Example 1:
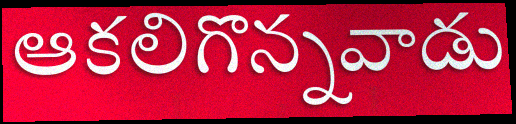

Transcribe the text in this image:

ఆకలిగొన్నవాడు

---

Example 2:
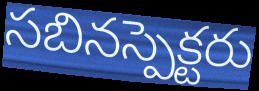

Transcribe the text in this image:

సబినస్పెక్టరు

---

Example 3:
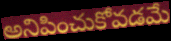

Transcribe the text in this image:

అనిపించుకోవడమే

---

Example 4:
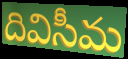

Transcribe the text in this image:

దివిసీమ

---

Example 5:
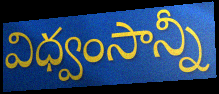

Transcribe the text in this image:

విధ్వంసాన్నీ